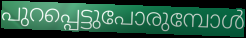
പുറപ്പെട്ടുപോരുമ്പോൾ